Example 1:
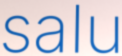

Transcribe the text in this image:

salu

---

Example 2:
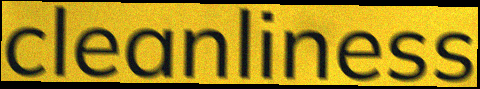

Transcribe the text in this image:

cleanliness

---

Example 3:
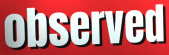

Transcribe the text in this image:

observed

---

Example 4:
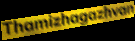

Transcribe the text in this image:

Thamizhagazhvan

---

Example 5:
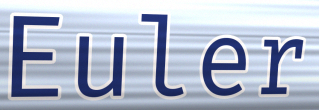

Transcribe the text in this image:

Euler